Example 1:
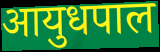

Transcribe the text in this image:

आयुधपाल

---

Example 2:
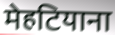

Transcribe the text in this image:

मेहटियाना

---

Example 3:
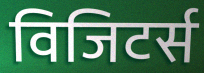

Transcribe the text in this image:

विजिटर्स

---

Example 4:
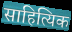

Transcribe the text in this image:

साहित्यिक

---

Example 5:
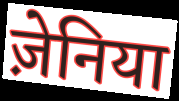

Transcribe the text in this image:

ज़ेनिया